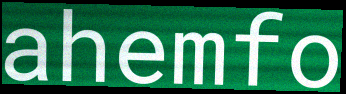
ahemfo